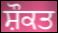
ਸ਼ੌਕਤ